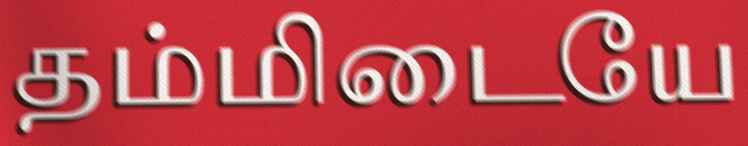
தம்மிடையே